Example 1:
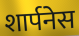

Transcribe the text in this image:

शार्पनेस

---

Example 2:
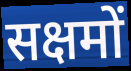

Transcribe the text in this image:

सक्षमों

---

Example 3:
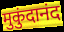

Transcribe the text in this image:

मुकुंदानंद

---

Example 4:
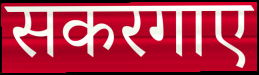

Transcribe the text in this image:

सकरगाए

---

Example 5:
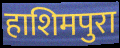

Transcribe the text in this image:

हाशिमपुरा